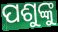
ପଶୁଙ୍କୁ